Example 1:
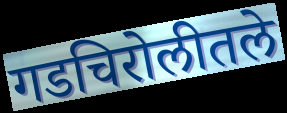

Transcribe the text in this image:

गडचिरोलीतले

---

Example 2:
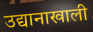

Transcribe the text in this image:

उद्यानाखाली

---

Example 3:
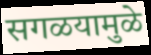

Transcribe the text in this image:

सगळयामुळे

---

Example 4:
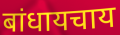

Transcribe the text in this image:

बांधायचाय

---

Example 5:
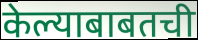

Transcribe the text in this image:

केल्याबाबतची